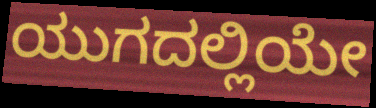
ಯುಗದಲ್ಲಿಯೇ